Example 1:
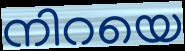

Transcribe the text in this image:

നിറയെ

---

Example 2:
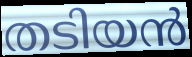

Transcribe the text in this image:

തടിയൻ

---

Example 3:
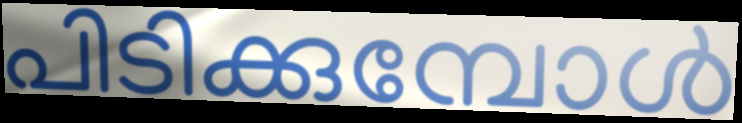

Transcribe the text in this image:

പിടിക്കുമ്പോൾ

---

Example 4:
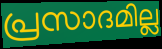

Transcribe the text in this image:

പ്രസാദമില്ല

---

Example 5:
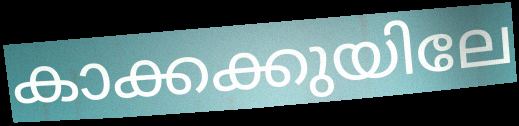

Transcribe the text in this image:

കാക്കക്കുയിലേ